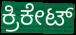
ಕ್ರಿಕೇಟ್